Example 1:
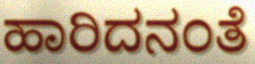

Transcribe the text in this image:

ಹಾರಿದನಂತೆ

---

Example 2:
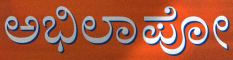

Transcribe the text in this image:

ಅಭಿಲಾಪೋ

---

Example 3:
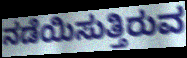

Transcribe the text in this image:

ನಡೆಯಿಸುತ್ತಿರುವ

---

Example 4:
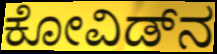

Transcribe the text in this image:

ಕೋವಿಡ್‌ನ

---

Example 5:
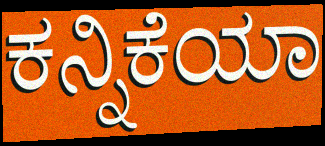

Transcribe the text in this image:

ಕನ್ನಿಕೆಯಾ